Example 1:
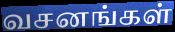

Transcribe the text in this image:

வசனங்கள்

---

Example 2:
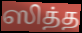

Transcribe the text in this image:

ஸித்த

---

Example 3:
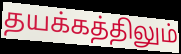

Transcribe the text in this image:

தயக்கத்திலும்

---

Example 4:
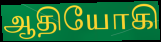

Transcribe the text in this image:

ஆதியோகி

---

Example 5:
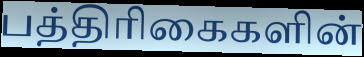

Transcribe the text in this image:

பத்திரிகைகளின்